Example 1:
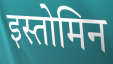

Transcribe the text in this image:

इस्तोमिन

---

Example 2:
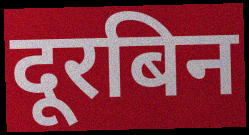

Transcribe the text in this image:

दूरबिन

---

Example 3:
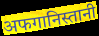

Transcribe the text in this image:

अफगानिस्तानी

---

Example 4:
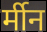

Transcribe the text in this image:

र्मीन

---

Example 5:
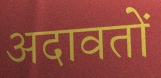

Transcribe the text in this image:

अदावतों